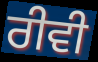
ਰੀਵੀ